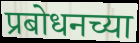
प्रबोधनच्या